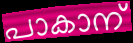
പാകാന്